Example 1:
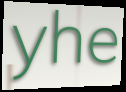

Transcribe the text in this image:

yhe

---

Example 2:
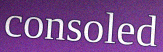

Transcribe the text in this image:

consoled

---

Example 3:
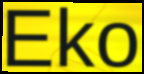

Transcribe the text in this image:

Eko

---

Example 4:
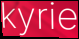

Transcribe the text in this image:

kyrie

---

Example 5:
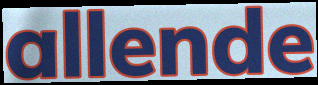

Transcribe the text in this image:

allende